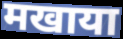
मखाया